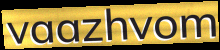
vaazhvom